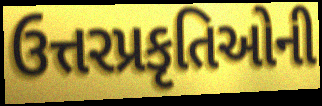
ઉત્તરપ્રકૃતિઓની